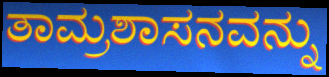
ತಾಮ್ರಶಾಸನವನ್ನು